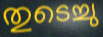
തുടെച്ചു